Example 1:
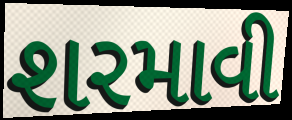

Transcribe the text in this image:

શરમાવી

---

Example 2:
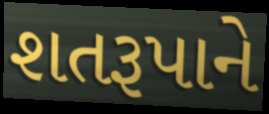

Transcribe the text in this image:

શતરૂપાને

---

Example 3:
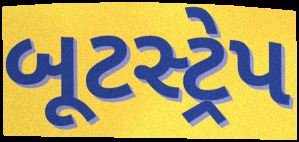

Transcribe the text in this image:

બૂટસ્ટ્રેપ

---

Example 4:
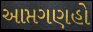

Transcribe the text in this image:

આપ્તગણહો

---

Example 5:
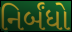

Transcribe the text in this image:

નિર્બંધો